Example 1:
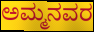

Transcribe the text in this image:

ಅಮ್ಮನವರ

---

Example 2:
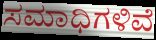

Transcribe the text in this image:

ಸಮಾಧಿಗಳಿವೆ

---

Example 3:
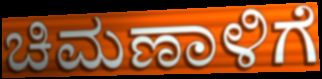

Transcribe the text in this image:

ಚಿಮಣಾಳಿಗೆ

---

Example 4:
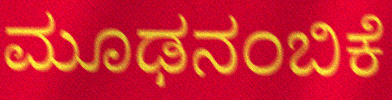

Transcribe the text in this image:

ಮೂಢನಂಬಿಕೆ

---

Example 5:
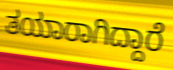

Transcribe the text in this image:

ತಯಾರಾಗಿದ್ದಾರೆ